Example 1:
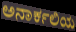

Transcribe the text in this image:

ಅನಾರ್ಕಲಿಯ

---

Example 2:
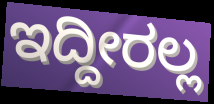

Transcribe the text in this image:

ಇದ್ದೀರಲ್ಲ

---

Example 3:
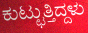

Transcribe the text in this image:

ಕುಟ್ಟುತ್ತಿದ್ದಳು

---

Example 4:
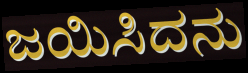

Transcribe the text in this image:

ಜಯಿಸಿದನು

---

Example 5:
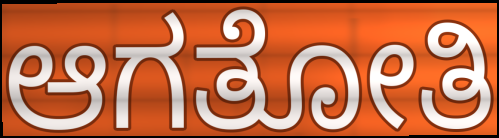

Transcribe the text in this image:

ಆಗತೋತಿ